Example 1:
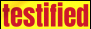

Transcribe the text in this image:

testified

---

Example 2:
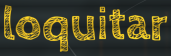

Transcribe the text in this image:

loquitar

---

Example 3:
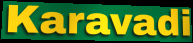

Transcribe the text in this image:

Karavadi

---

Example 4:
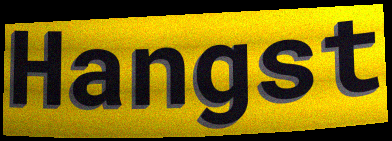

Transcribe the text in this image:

Hangst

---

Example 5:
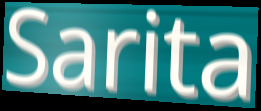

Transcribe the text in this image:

Sarita